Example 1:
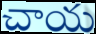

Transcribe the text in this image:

చాయ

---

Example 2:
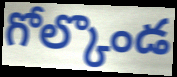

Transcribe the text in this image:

గోల్కొండ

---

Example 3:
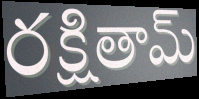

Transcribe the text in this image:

రక్షితామ్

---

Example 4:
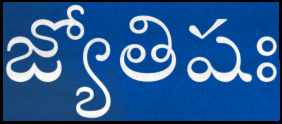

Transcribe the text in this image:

జ్యోతిషః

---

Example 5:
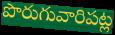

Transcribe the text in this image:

పొరుగువారిపట్ల